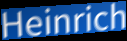
Heinrich